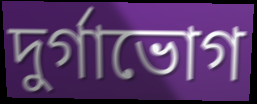
দুর্গাভোগ